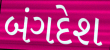
બંગદેશ